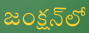
జంక్షన్‌లో